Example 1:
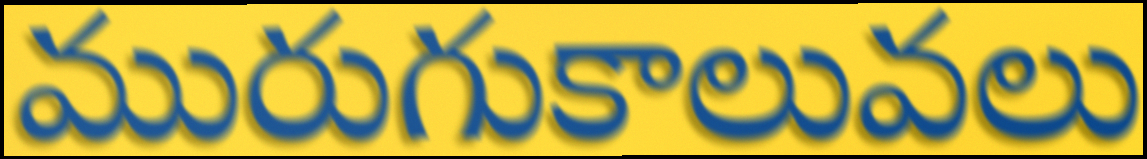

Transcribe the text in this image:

మురుగుకాలువలు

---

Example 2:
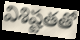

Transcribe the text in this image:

విశిష్టతతో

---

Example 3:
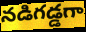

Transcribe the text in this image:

నడిగడ్డగా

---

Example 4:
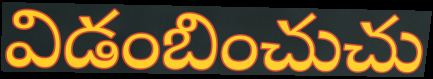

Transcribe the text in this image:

విడంబించుచు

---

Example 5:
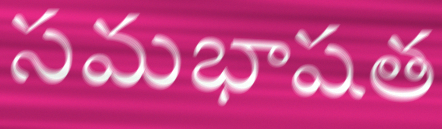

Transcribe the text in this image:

సమభాషత